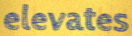
elevates